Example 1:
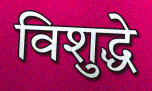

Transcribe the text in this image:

विशुद्धे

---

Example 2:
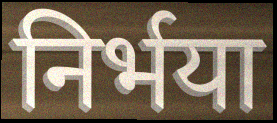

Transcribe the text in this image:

निर्भया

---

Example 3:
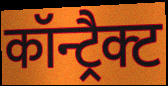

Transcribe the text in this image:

कॉन्‍ट्रैक्‍ट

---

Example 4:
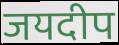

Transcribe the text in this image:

जयदीप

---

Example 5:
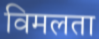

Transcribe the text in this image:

विमलता